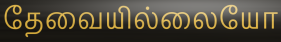
தேவையில்லையோ